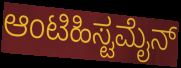
ಆಂಟಿಹಿಸ್ಟಮೈನ್